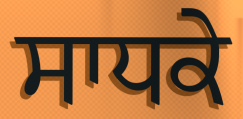
ਸਾਧਕੇ